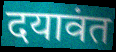
दयावंत